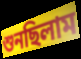
শুনছিলাম